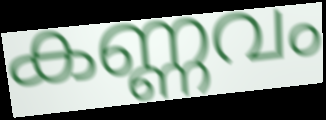
കണ്ണവം